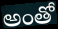
అంతో